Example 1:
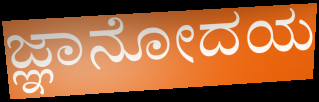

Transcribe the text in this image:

ಜ್ಞಾನೋದಯ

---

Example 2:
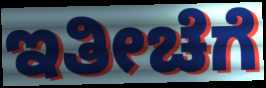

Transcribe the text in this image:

ಇತೀಚೆಗೆ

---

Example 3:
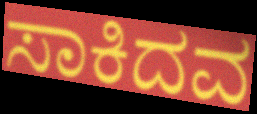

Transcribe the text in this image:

ಸಾಕಿದವ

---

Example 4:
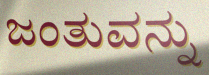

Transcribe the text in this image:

ಜಂತುವನ್ನು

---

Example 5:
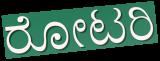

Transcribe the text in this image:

ರೋಟರಿ